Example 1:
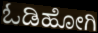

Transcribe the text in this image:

ಓಡಿಹೋಗಿ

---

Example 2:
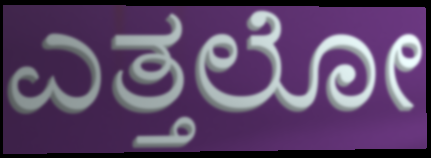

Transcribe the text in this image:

ಎತ್ತಲೋ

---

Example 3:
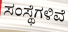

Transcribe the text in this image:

ಸಂಸ್ಥೆಗಳಿವೆ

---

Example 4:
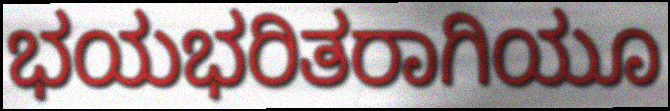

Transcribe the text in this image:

ಭಯಭರಿತರಾಗಿಯೂ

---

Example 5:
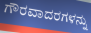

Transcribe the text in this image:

ಗೌರವಾದರಗಳನ್ನು